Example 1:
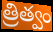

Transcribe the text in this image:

త్రిత్వం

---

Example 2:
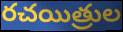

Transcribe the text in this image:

రచయిత్రుల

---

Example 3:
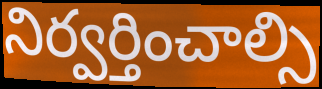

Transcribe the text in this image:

నిర్వర్తించాల్సి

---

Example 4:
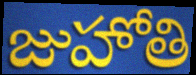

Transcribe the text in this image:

జుహోతి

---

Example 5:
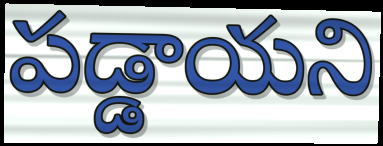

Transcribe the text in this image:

పడ్డాయని